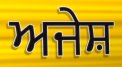
ਅਜੇਸ਼